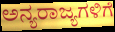
ಅನ್ಯರಾಜ್ಯಗಳಿಗೆ